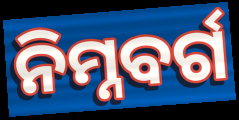
ନିମ୍ନବର୍ଗ